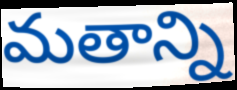
మతాన్ని